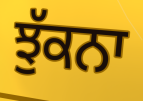
ਝੁੱਕਨਾ